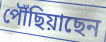
পৌঁছিয়াছেন